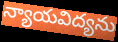
న్యాయవిద్యను